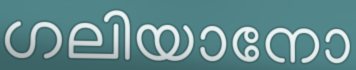
ഗലിയാനോ